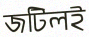
জটিলই